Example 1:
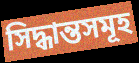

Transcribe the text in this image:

সিদ্ধান্তসমূহ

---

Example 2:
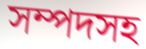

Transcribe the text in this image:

সম্পদসহ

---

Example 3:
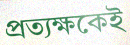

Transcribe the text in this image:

প্রত্যক্ষকেই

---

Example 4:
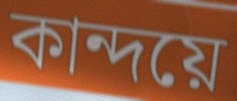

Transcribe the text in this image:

কান্দয়ে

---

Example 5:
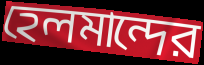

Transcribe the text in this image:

হেলমান্দের